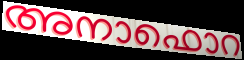
അനാഫൊറ